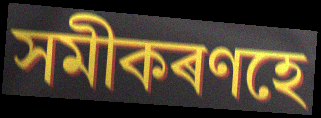
সমীকৰণহে